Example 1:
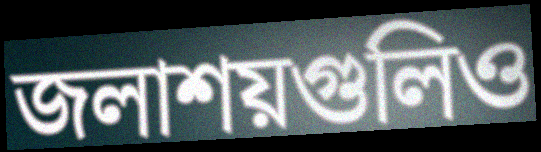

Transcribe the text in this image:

জলাশয়গুলিও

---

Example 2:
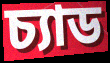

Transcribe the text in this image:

চ্যাড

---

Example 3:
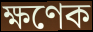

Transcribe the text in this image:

ক্ষণেক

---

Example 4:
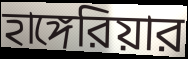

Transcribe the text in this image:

হাঙ্গেরিয়ার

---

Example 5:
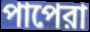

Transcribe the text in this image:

পাপেরা